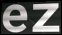
ez